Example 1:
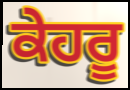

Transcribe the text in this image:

ਕੇਹਰੂ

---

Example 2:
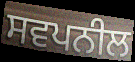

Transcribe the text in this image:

ਸਵਪਨੀਲ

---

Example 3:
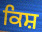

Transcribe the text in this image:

ਕਿਸ਼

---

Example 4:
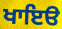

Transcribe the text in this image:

ਖਾਇੳ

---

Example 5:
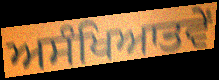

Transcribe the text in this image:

ਅਸੰਖਿਆਤਵੇਂ